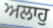
ਅਲਾਹੁ